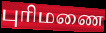
புரிமணை